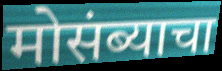
मोसंब्याचा